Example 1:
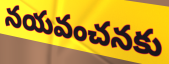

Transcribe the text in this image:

నయవంచనకు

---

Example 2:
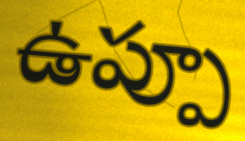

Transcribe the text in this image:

ఉప్పూ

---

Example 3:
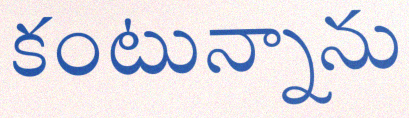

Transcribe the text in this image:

కంటున్నాను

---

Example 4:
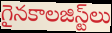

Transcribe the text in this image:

గైనకాలజిస్ట్‌లు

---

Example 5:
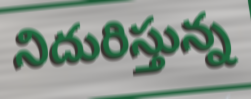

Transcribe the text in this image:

నిదురిస్తున్న